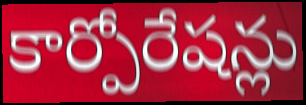
కార్పోరేషన్లు